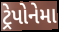
ટ્રેપોનેમા